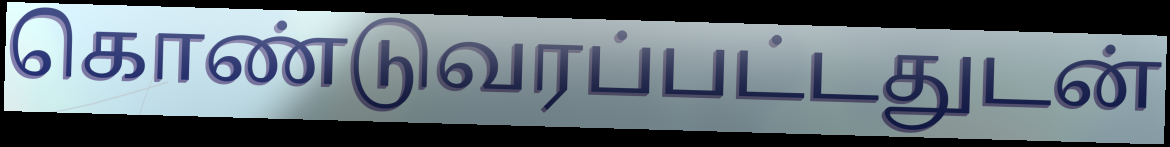
கொண்டுவரப்பட்டதுடன்